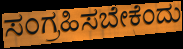
ಸಂಗ್ರಹಿಸಬೇಕೆಂದು